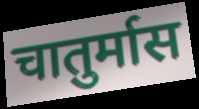
चातुर्मास